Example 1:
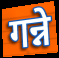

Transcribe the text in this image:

गन्ने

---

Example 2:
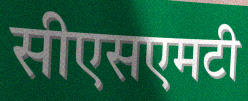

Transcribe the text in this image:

सीएसएमटी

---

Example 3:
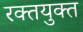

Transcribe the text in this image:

रक्तयुक्त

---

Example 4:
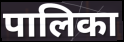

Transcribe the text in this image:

पालिका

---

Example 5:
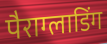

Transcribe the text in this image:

पैराग्लाडिंग